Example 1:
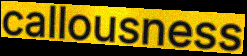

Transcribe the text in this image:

callousness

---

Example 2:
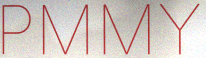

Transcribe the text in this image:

PMMY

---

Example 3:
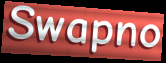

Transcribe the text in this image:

Swapno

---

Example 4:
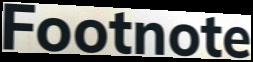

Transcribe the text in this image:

Footnote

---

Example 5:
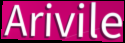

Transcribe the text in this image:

Arivile